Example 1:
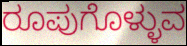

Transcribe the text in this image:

ರೂಪುಗೊಳ್ಳುವ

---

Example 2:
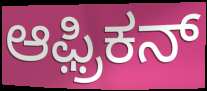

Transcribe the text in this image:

ಆಫ಼್ರಿಕನ್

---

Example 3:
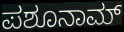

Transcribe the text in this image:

ಪಶೂನಾಮ್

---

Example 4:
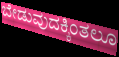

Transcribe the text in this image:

ಬೇಡುವುದಕ್ಕಿಂತಲೂ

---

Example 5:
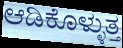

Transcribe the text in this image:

ಆಡಿಕೊಳ್ಳುತ್ತ